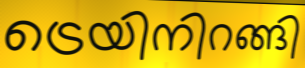
ട്രെയിനിറങ്ങി